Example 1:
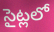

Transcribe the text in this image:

సైట్లలో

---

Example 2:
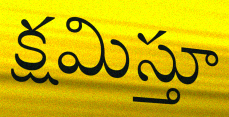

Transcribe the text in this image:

క్షమిస్తూ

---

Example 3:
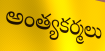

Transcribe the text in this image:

అంత్యకర్మలు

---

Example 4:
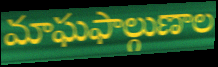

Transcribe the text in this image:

మాఘఫాల్గుణాల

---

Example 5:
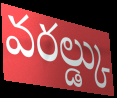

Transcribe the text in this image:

వరల్డ్కు